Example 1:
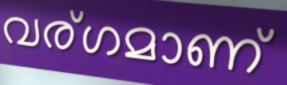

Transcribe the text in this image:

വര്ഗമാണ്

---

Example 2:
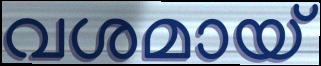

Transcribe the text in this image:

വശമായ്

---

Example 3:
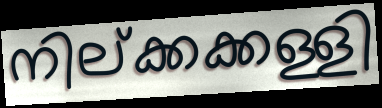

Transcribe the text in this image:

നില്ക്കക്കള്ളി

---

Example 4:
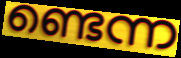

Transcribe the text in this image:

ണ്ടെന്ന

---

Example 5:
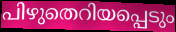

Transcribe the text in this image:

പിഴുതെറിയപ്പെടും